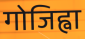
गोजिह्वा